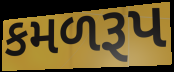
કમળરૂપ